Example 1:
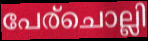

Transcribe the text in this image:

പേര്ചൊല്ലി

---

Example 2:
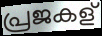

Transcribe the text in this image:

പ്രജകള്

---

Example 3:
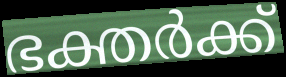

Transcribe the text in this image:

ഭക്തർക്ക്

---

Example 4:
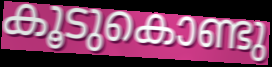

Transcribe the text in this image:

കൂടുകൊണ്ടു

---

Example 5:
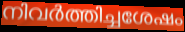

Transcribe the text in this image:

നിവർത്തിച്ചശേഷം